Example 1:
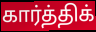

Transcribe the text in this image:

கார்த்திக்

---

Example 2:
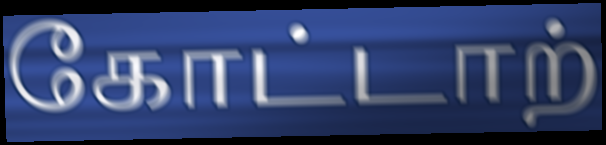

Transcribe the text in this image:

கோட்டாற்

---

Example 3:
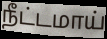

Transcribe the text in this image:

நீட்டமாய்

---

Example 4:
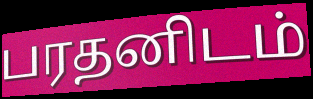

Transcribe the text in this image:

பரதனிடம்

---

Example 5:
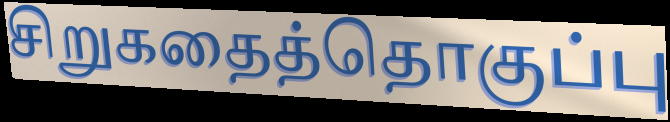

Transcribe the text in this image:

சிறுகதைத்தொகுப்பு